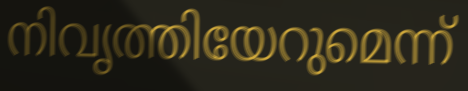
നിവൃത്തിയേറുമെന്ന്